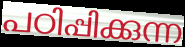
പഠിപ്പിക്കുന്ന